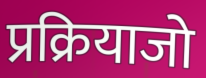
प्रक्रियाजो